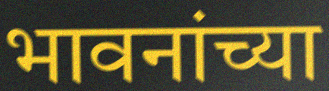
भावनांच्या